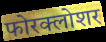
फोरक्लोशर